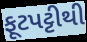
ફૂટપટ્ટીથી